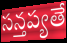
సన్తప్యతే